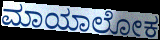
ಮಾಯಾಲೋಕ